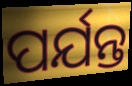
ପର୍ଯନ୍ତ